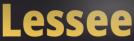
Lessee